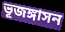
ভূজঙ্গাসন